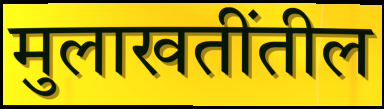
मुलाखतींतील